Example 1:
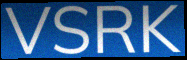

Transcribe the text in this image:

VSRK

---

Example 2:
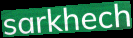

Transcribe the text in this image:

sarkhech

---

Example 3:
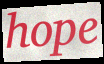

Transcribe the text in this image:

hope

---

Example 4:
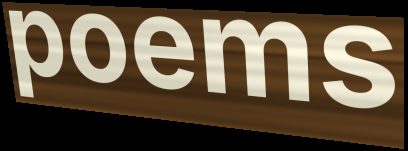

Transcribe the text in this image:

poems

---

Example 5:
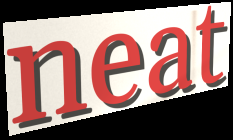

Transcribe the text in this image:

neat